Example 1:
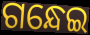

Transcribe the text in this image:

ଗନ୍ଧେଇ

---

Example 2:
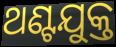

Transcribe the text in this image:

ଥଣ୍ଟଯୁକ୍ତ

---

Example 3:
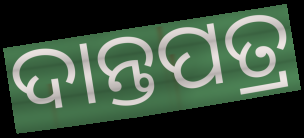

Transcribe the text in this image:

ଦାନ୍ତପତ୍ର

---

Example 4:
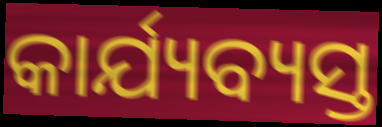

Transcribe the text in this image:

କାର୍ଯ୍ୟବ୍ୟସ୍ତ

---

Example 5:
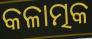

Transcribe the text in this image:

କଳାତ୍ମକ